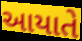
આયાતે